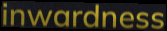
inwardness